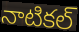
నాటికల్